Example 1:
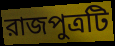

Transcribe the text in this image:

রাজপুত্রটি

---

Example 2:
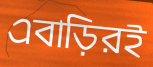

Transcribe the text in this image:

এবাড়িরই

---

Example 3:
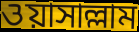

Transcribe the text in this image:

ওয়াসাল্লাম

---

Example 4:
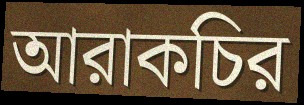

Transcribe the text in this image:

আরাকচির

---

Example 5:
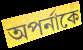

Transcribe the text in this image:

অপর্নাকে